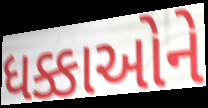
ધક્કાઓને